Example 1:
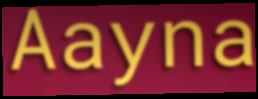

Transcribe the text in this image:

Aayna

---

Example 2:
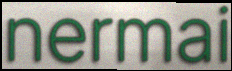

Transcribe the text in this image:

nermai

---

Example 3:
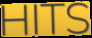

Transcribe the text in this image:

HITS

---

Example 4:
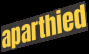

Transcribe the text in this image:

aparthied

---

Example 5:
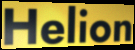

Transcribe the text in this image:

Helion